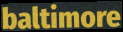
baltimore